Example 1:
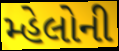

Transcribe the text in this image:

મ્હેલોની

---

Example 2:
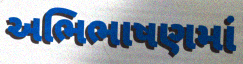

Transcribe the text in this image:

અભિભાષણમાં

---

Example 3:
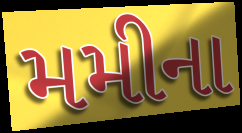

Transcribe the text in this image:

મમીના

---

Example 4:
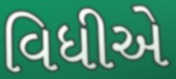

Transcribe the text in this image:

વિધીએ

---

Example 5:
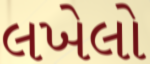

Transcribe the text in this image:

લખેલો